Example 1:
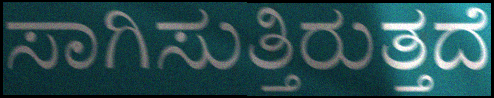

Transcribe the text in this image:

ಸಾಗಿಸುತ್ತಿರುತ್ತದೆ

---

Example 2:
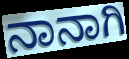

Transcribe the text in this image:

ನಾನಾಗಿ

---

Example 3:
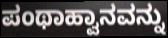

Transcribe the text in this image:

ಪಂಥಾಹ್ವಾನವನ್ನು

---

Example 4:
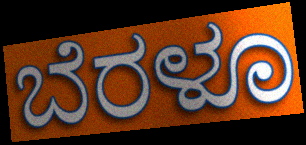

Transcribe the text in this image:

ಬೆರಳೂ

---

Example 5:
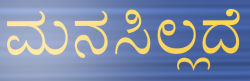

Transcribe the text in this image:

ಮನಸಿಲ್ಲದೆ